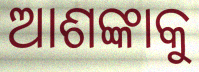
ଆଶଙ୍କାକୁ